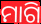
ମାଗି